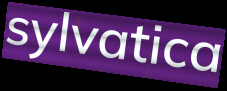
sylvatica